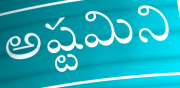
అష్టమిని